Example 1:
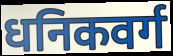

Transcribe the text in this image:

धनिकवर्ग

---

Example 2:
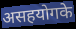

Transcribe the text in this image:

असहयोगके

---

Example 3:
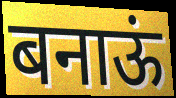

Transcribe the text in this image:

बनाऊं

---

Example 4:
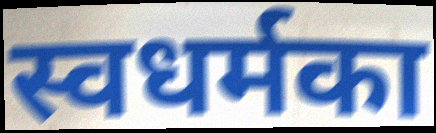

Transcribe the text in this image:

स्वधर्मका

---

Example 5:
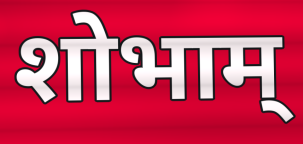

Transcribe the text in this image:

शोभाम्